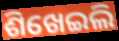
ଶିଖେଇଲି